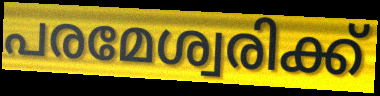
പരമേശ്വരിക്ക്